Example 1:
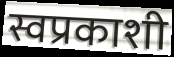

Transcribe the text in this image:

स्वप्रकाशी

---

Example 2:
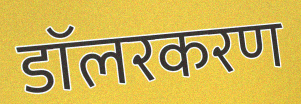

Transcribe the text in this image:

डॉलरकरण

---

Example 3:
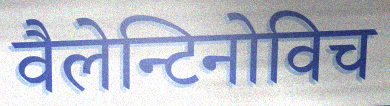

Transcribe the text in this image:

वैलेन्टिनोविच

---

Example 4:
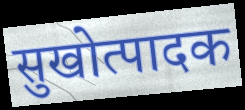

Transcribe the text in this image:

सुखोत्पादक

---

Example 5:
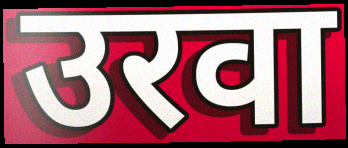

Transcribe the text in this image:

उरवा